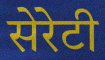
सेरेटी